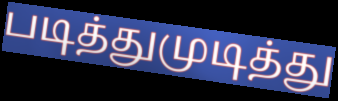
படித்துமுடித்து